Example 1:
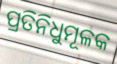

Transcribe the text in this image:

ପ୍ରତିନିଧୁମୂଳକ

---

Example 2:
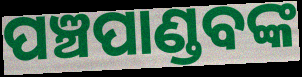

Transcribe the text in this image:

ପଞ୍ଚପାଣ୍ଡବଙ୍କ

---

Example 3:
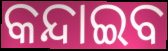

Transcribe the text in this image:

କନ୍ଦାଇବ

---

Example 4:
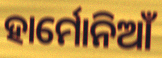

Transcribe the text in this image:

ହାର୍ମୋନିଆଁ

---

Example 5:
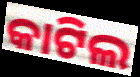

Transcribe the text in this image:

କାଟିଲ